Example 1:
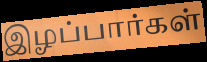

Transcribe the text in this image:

இழப்பார்கள்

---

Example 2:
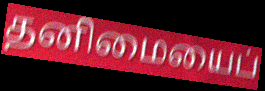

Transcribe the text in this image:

தனிமையைப்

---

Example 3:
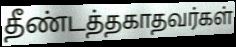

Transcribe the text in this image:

தீண்டத்தகாதவர்கள்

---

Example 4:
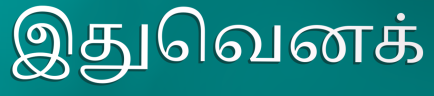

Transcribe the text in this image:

இதுவெனக்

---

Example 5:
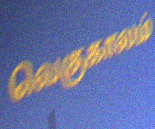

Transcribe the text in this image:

வெகுகாலம்